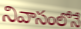
నివాసంలోనే